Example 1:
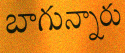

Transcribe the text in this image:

బాగున్నారు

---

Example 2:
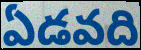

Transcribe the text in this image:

ఏడవది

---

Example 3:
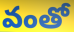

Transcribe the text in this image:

వంతో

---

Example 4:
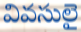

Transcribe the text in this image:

వివసులై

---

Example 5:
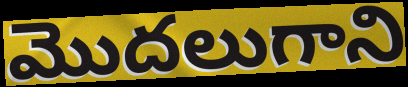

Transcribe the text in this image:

మొదలుగాని